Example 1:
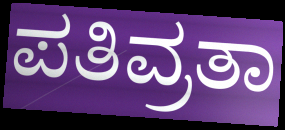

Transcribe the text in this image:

ಪತಿವ್ರತಾ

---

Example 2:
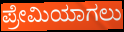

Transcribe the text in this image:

ಪ್ರೇಮಿಯಾಗಲು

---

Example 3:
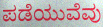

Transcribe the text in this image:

ಪಡೆಯುವೆವು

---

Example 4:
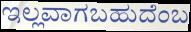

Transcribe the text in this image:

ಇಲ್ಲವಾಗಬಹುದೆಂಬ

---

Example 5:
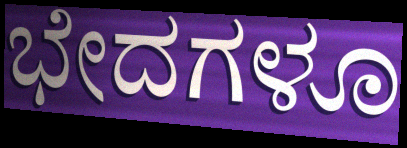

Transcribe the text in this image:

ಭೇದಗಳೂ